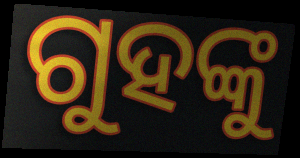
ଗୁହଙ୍କୁ